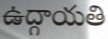
ఉద్గాయతి